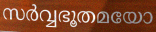
സർവ്വഭൂതമയോ